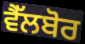
ਵੈੱਲਬੋਰ